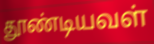
தூண்டியவள்